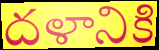
దళానికి